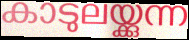
കാടുലയ്ക്കുന്ന